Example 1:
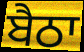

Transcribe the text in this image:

ਬੈਠਾ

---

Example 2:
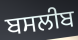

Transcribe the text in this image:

ਬਸਲੀਬ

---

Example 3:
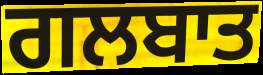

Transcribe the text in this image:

ਗਲਬਾਤ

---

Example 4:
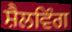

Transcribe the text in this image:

ਸ਼ੈਲਵਿੰਗ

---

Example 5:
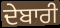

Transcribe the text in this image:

ਦੇਬਾਰੀ